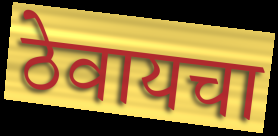
ठेवायचा